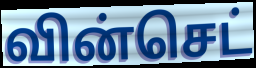
வின்செட்